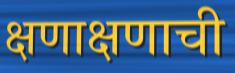
क्षणाक्षणाची